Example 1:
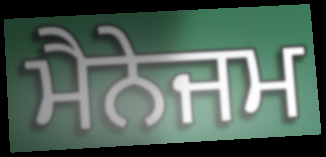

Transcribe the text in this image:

ਮੈਨੇਜਮ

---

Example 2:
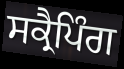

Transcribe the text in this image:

ਸਕ੍ਰੈਪਿੰਗ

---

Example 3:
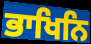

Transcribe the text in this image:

ਭਾਖਿਨਿ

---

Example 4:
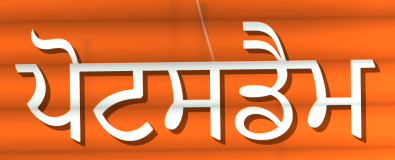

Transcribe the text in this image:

ਪੋਟਸਡੈਮ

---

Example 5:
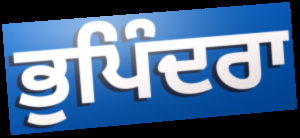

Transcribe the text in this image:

ਭੁਪਿੰਦਰਾ